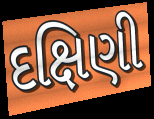
દક્ષિણી